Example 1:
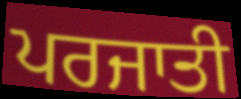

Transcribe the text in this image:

ਪਰਜਾਤੀ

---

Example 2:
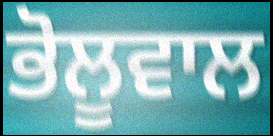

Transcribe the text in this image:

ਭੋਲੂਵਾਲ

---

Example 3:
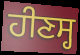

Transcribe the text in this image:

ਹੀਣਸ੍ਹ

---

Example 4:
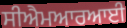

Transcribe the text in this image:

ਸੀਐਮਆਰਆਈ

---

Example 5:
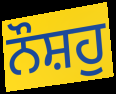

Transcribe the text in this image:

ਨੌਸ਼ਹੁ